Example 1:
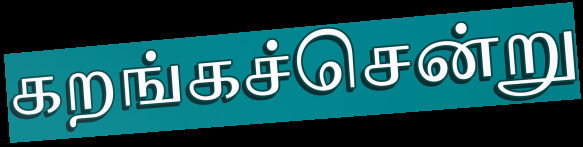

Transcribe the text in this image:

கறங்கச்சென்று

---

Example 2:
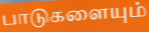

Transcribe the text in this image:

பாடுகளையும்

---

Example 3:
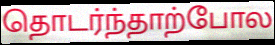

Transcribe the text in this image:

தொடர்ந்தாற்போல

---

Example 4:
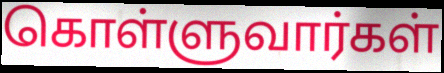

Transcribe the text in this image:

கொள்ளுவார்கள்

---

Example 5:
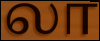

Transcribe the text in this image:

லா